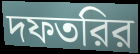
দফতরির